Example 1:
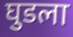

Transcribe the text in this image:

घुडला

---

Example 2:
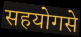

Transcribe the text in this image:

सहयोगसे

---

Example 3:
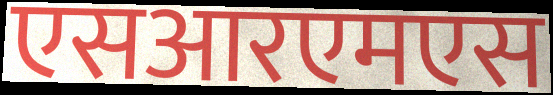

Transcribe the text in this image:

एसआरएमएस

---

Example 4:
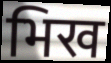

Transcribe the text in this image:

भिख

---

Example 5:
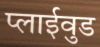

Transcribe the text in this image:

प्‍लाईवुड